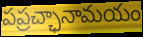
పప్రచ్ఛానామయం